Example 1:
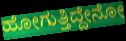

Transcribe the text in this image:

ಹೋಗುತ್ತಿದ್ದೇನೋ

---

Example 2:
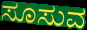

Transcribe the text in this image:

ಸೂಸುವ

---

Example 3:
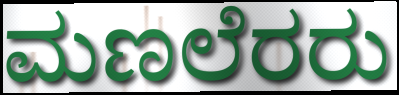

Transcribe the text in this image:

ಮಣಲೆರರು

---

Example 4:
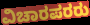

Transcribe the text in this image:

ವಿಚಾರಪರರು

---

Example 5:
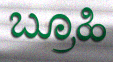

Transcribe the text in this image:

ಬ್ರೂಹಿ